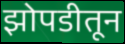
झोपडीतून